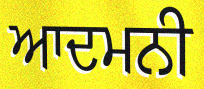
ਆਦਮਨੀ